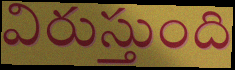
విరుస్తుంది